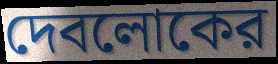
দেবলোকের